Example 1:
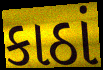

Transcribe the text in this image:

કાઠાં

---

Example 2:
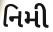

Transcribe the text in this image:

નિમી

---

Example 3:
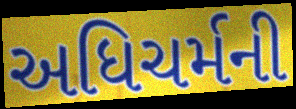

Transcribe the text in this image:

અધિચર્મની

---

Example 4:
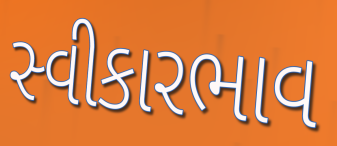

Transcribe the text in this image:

સ્વીકારભાવ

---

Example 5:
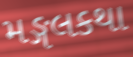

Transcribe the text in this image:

મઙ્ગલકથા